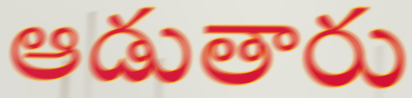
ఆడుతారు